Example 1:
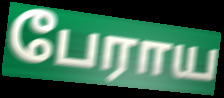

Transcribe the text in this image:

பேராய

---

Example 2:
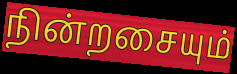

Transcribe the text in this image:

நின்றசையும்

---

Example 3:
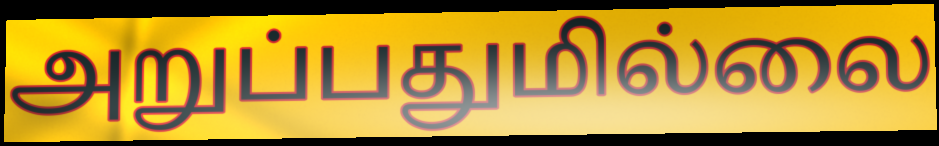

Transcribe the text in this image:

அறுப்பதுமில்லை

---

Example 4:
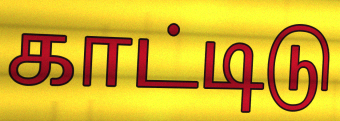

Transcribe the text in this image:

காட்டிடு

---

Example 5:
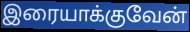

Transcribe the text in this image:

இரையாக்குவேன்